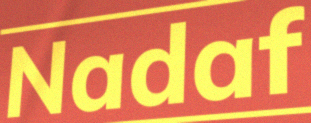
Nadaf